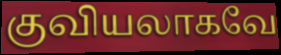
குவியலாகவே